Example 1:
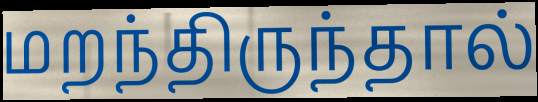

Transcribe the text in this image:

மறந்திருந்தால்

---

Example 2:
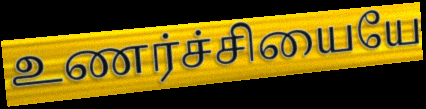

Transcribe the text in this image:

உணர்ச்சியையே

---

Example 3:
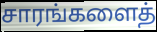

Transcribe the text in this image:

சாரங்களைத்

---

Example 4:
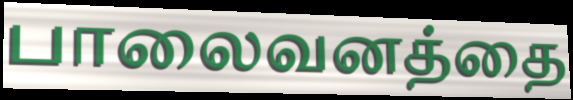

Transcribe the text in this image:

பாலைவனத்தை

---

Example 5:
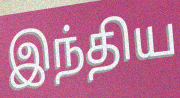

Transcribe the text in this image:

இந்திய